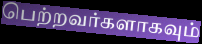
பெற்றவர்களாகவும்